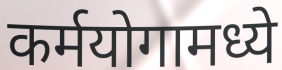
कर्मयोगामध्ये